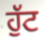
ਹੁੱਟ